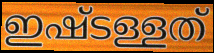
ഇഷ്ടള്ളത്